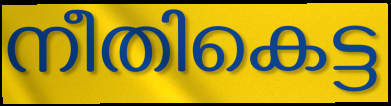
നീതികെട്ട